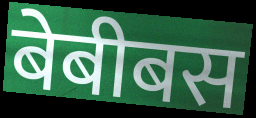
बेबीबस